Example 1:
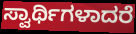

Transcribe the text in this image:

ಸ್ವಾರ್ಥಿಗಳಾದರೆ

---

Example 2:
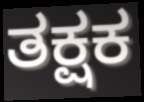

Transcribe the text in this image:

ತಕ್ಷಕ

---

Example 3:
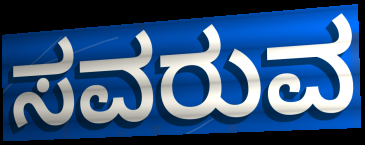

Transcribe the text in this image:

ಸವರುವ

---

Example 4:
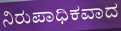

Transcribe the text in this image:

ನಿರುಪಾಧಿಕವಾದ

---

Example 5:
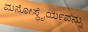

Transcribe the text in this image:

ಮನೋಸ್ಥೈರ್ಯವನ್ನು